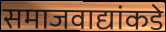
समाजवाद्यांकडे